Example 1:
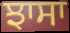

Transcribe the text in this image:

ਝਾਸਾ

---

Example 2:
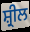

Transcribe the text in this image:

ਸ਼੍ਰੀਲ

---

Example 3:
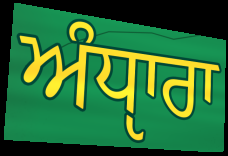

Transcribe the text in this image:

ਅੰਧੵਾਰਾ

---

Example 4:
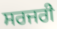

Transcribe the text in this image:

ਸਰਜਰੀ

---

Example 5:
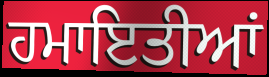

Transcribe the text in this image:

ਹਮਾਇਤੀਆਂ